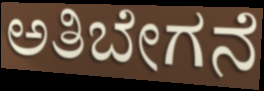
ಅತಿಬೇಗನೆ